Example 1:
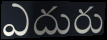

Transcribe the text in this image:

ఎదురు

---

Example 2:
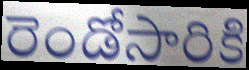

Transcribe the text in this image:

రెండోసారికి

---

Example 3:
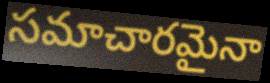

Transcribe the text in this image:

సమాచారమైనా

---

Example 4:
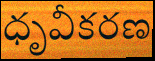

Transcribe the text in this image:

ధృవీకరణ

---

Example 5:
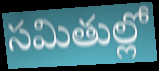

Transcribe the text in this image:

సమితుల్లో